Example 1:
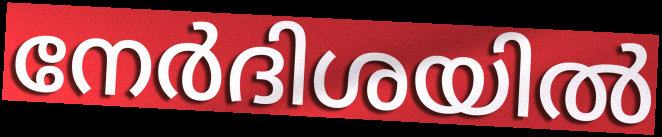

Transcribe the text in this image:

നേർദിശയിൽ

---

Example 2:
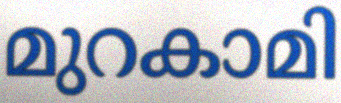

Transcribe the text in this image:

മുറകാമി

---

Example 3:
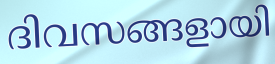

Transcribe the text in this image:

ദിവസങ്ങളായി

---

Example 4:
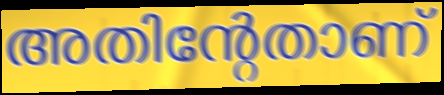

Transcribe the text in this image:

അതിന്റേതാണ്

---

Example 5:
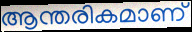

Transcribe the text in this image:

ആന്തരികമാണ്